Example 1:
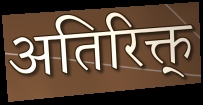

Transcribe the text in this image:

अतिरिक्त्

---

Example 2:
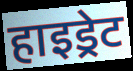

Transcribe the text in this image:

हाइड्रेट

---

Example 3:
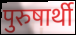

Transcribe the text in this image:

पुरुषार्थी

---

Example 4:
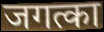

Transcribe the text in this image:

जगत्का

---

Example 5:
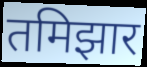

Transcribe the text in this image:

तमिझार